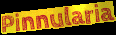
Pinnularia